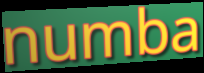
numba